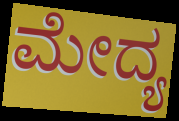
ಮೇದ್ಯ